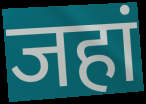
जहां